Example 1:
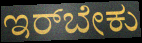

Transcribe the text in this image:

ಇರ್‌ಬೇಕು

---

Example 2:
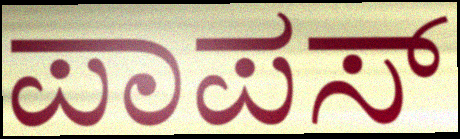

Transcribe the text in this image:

ಪಾಪಸ್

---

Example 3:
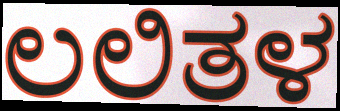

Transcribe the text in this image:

ಲಲಿತಳ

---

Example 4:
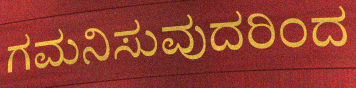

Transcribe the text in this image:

ಗಮನಿಸುವುದರಿಂದ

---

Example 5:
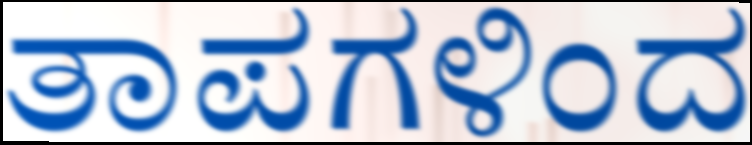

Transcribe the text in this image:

ತಾಪಗಳಿಂದ